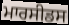
ਮਾਰਸੀਡਸ